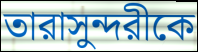
তারাসুন্দরীকে